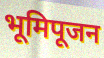
भूमिपूजन